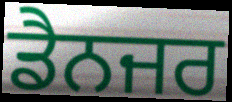
ਡੈਨਜਰ